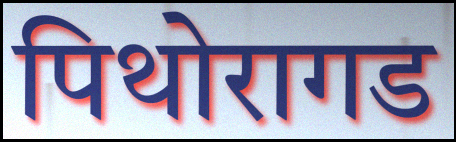
पिथोरागड